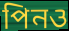
পিনও